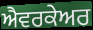
ਐਵਰਕੇਅਰ